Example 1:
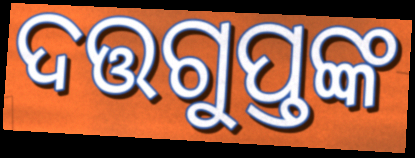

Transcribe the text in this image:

ଦତ୍ତଗୁପ୍ତଙ୍କ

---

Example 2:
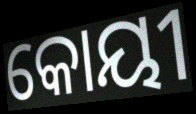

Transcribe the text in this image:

କୋୟୀ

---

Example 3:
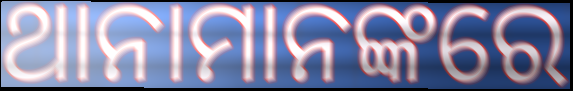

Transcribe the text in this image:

ଥାନାମାନଙ୍କରେ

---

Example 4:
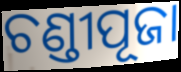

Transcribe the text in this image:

ଚଣ୍ଡୀପୂଜା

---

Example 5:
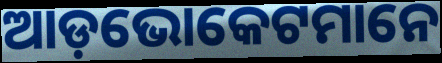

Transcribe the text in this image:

ଆଡ଼ଭୋକେଟମାନେ